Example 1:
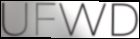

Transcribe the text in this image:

UFWD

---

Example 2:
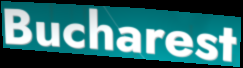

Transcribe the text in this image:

Bucharest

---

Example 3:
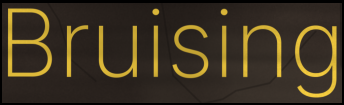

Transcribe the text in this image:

Bruising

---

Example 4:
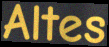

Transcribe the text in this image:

Altes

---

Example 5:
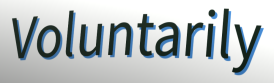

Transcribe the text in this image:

Voluntarily